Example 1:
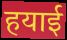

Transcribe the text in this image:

हयाई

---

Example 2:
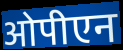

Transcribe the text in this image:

ओपीएन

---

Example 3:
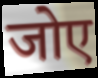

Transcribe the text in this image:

जोए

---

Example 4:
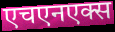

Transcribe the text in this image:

एचएनएक्स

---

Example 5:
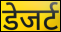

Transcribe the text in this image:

डेजर्ट